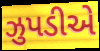
ઝુપડીએ